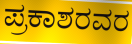
ಪ್ರಕಾಶರವರ